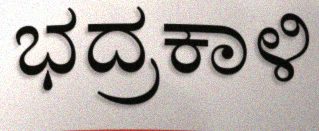
ಭದ್ರಕಾಳಿ